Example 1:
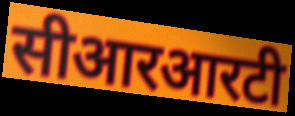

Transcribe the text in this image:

सीआरआरटी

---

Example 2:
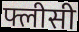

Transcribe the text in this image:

फ्लीसी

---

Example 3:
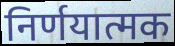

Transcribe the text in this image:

निर्णयात्मक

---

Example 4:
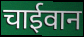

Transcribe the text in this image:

चाईवान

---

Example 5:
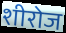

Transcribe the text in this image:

शीरोज